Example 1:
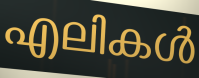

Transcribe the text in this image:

എലികൾ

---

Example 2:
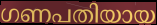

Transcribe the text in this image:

ഗണപതിയായ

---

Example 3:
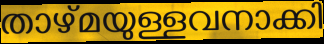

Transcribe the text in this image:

താഴ്മയുള്ളവനാക്കി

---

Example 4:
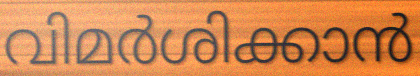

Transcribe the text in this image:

വിമർശിക്കാൻ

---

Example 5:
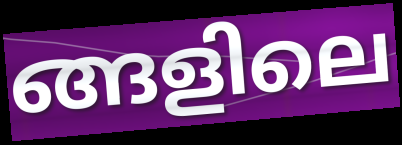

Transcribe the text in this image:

ങ്ങളിലെ